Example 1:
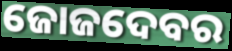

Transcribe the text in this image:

ଜୋଜଦେବର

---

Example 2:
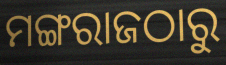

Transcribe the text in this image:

ମଙ୍ଗରାଜଠାରୁ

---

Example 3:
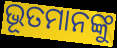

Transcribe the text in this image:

ଭୂତମାନଙ୍କୁ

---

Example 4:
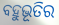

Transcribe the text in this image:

ବହୁଭୂତିର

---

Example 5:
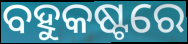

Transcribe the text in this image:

ବହୁକଷ୍ଟରେ